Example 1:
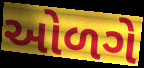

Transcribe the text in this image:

ઓળગે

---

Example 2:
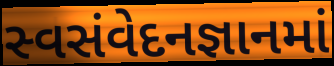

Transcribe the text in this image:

સ્વસંવેદનજ્ઞાનમાં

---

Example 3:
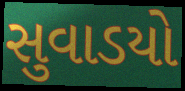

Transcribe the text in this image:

સુવાડયો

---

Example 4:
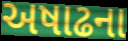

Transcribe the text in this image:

અષાઢના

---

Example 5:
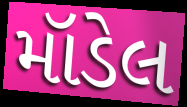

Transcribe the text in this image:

મૉડેલ